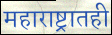
महाराष्ट्रातही